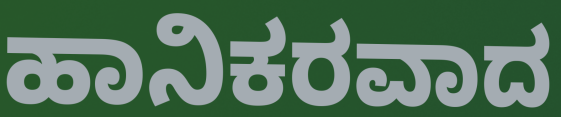
ಹಾನಿಕರವಾದ